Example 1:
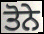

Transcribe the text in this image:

ਤੋਨੇ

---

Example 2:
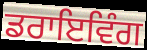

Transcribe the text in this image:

ਡਰਾਇਵਿੰਗ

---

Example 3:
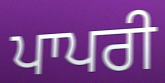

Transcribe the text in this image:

ਪਾਪਰੀ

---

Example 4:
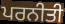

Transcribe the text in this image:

ਪਰਨੀਤੀ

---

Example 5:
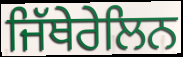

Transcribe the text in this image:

ਜਿੱਥੇਰੇਲਿਨ